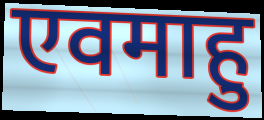
एवमाहु